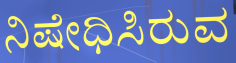
ನಿಷೇಧಿಸಿರುವ